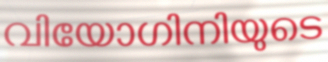
വിയോഗിനിയുടെ